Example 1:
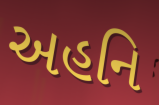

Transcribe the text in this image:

અહનિ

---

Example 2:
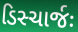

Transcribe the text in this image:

ડિસ્ચાર્જઃ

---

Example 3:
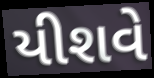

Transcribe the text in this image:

યીશવે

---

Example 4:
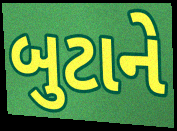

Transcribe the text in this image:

બુટાને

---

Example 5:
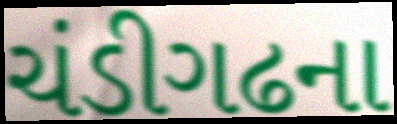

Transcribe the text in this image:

ચંડીગઢના